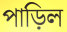
পাড়িল